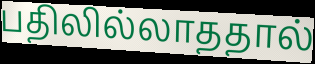
பதிலில்லாததால்